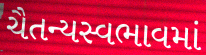
ચૈતન્યસ્વભાવમાં